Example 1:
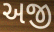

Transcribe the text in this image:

અજી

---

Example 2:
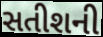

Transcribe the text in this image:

સતીશની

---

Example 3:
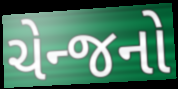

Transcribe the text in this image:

ચેન્જનો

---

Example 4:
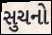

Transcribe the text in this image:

સુચનો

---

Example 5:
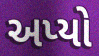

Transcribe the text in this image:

અપ્યો